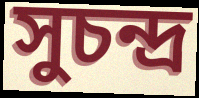
সুচন্দ্র